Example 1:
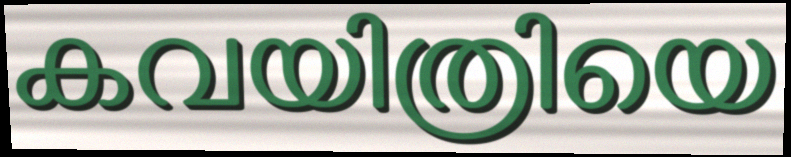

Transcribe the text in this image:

കവയിത്രിയെ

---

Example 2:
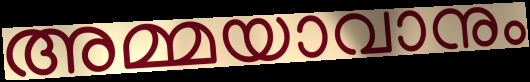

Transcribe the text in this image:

അമ്മയാവാനും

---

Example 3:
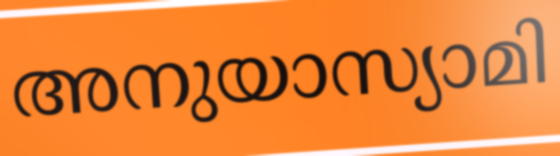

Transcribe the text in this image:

അനുയാസ്യാമി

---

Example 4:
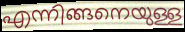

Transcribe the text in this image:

എന്നിങ്ങനെയുള്ള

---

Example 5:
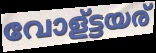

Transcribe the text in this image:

വോള്ട്ടയര്